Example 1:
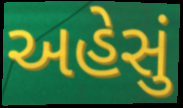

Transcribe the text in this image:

અહેસું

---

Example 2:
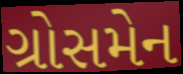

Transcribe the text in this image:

ગ્રોસમેન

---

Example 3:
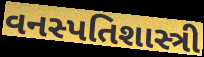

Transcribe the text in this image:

વનસ્પતિશાસ્ત્રી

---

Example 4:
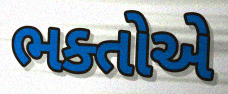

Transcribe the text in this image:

ભક્તોએ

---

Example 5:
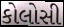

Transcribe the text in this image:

કોલોસી